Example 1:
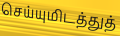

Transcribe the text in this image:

செய்யுமிடத்துத்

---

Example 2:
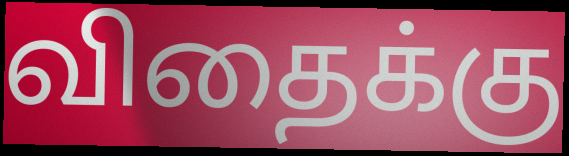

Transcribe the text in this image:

விதைக்கு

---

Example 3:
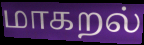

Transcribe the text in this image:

மாகறல்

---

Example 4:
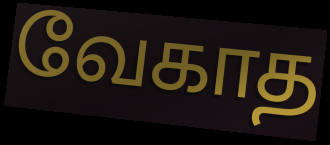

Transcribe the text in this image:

வேகாத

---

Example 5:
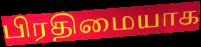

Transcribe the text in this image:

பிரதிமையாக